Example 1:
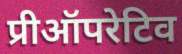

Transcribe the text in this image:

प्रीऑपरेटिव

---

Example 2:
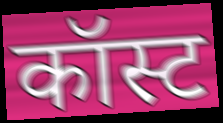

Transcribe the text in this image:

कॉस्ट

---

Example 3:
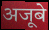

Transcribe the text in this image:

अजूबे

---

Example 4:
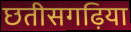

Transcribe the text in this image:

छतीसगढ़िया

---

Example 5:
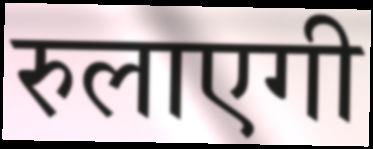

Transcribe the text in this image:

रुलाएगी